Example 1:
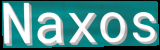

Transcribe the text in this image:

Naxos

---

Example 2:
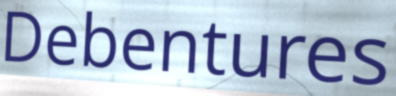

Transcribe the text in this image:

Debentures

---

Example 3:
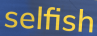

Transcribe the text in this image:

selfish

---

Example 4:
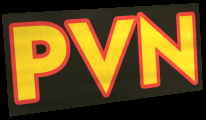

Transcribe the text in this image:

PVN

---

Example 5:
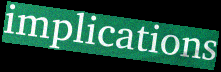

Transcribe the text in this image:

implications